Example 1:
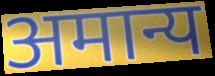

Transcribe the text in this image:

अमान्य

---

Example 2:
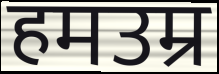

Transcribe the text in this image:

हमउम्र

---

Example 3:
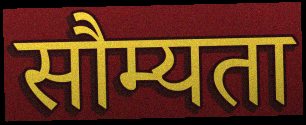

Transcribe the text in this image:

सौम्यता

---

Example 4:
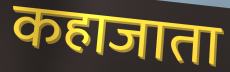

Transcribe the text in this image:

कहाजाता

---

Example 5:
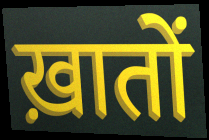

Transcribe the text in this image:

ख़ातों